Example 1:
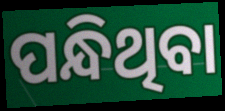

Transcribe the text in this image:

ପନ୍ଧିଥିବା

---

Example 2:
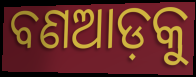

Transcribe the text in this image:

ବଣଆଡ଼କୁ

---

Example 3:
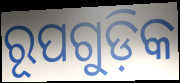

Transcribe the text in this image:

ରୂପଗୁଡ଼ିକ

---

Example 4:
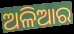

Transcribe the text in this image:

ଅଳିଆର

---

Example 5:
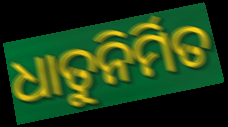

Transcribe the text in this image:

ଧାତୁନିର୍ମିତ